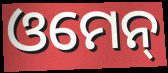
ଓମେନ୍